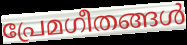
പ്രേമഗീതങ്ങൾ